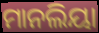
ମାନଲିୟା